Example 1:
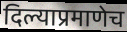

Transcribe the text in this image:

दिल्याप्रमाणेच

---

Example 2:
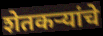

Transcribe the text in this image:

शेतकर्‍यांचे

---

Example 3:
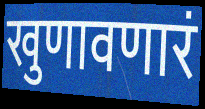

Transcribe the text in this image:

खुणावणारं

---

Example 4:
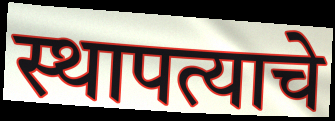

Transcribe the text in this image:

स्थापत्याचे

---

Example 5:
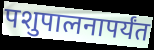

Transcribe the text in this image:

पशुपालनापर्यंत